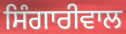
ਸਿੰਗਾਰੀਵਾਲ